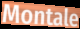
Montale